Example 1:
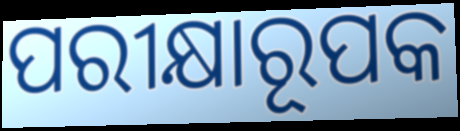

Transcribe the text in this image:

ପରୀକ୍ଷାରୂପକ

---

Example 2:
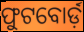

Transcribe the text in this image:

ଫୁଟବୋର୍ଡ଼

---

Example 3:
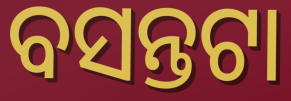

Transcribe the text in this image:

ବସନ୍ତଟା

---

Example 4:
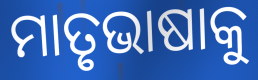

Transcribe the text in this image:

ମାତୃଭାଷାକୁ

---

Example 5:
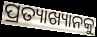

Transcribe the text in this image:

ପ୍ରତ୍ୟାଖ୍ୟାନକୁ